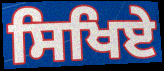
ਸਿਖਿਏ